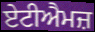
ਏਟੀਐਮਜ਼